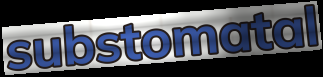
substomatal